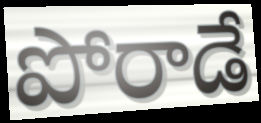
పోరాడే